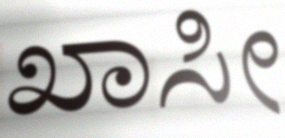
ಖಾಸೀ